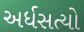
અર્ધસત્યો